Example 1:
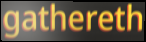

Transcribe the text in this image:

gathereth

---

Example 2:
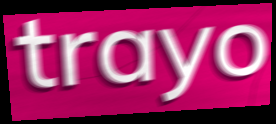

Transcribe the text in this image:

trayo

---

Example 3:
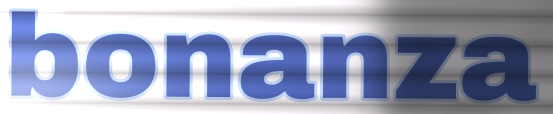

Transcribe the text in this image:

bonanza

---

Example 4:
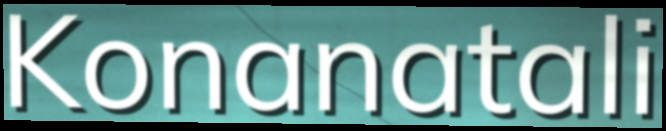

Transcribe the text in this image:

Konanatali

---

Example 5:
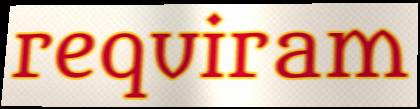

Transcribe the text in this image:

requiram